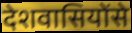
देशवासियोंसे